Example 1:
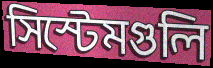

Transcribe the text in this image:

সিস্টেমগুলি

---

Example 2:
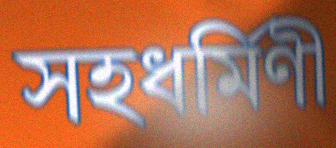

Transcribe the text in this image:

সহধর্মিণী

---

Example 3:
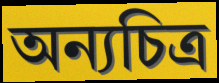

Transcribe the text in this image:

অন্যচিত্র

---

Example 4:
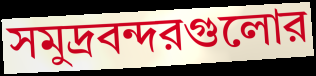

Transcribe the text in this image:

সমুদ্রবন্দরগুলোর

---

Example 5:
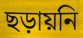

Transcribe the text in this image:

ছড়ায়নি